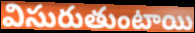
విసురుతుంటాయి